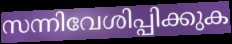
സന്നിവേശിപ്പിക്കുക